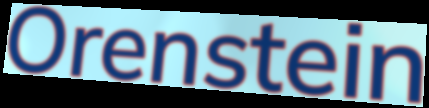
Orenstein